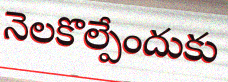
నెలకొల్పేందుకు